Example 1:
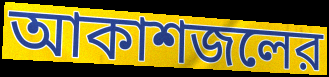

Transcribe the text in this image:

আকাশজলের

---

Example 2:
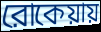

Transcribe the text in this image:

রোকেয়ায়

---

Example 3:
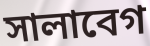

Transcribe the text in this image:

সালাবেগ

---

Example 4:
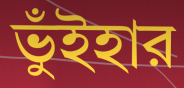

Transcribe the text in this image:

ভুঁইহার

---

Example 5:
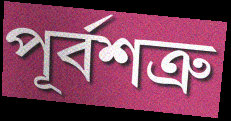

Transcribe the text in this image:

পূর্বশত্রু